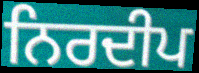
ਨਿਰਦੀਪ